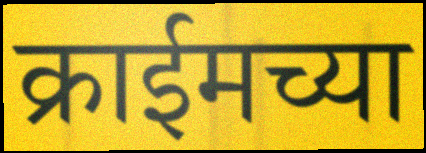
क्राईमच्या